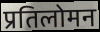
प्रतिलोमन